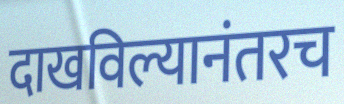
दाखविल्यानंतरच